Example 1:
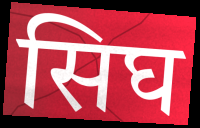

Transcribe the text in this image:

सिघ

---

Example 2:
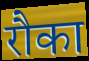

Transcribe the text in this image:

रौका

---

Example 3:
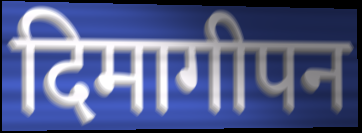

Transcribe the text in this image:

दिमागीपन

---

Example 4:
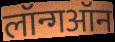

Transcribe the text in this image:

लॉन्गऑन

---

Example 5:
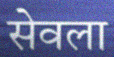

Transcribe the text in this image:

सेवला